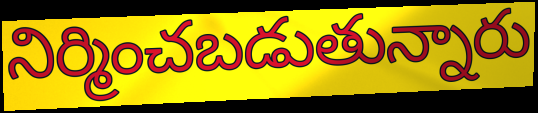
నిర్మించబడుతున్నారు